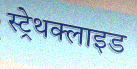
स्ट्रेथक्लाइड